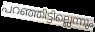
പറഞ്ഞിട്ടില്ലെന്നും